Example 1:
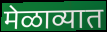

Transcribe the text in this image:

मेळाव्यात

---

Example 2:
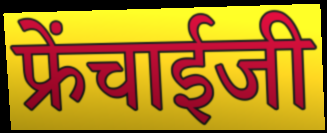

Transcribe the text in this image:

फ्रेंचाईजी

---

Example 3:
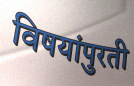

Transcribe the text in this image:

विषयांपुरती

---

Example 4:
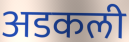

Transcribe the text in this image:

अडकली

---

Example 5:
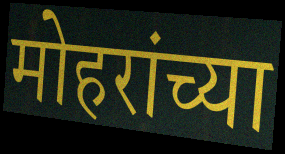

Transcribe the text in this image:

मोहरांच्या